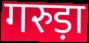
गरुड़ा